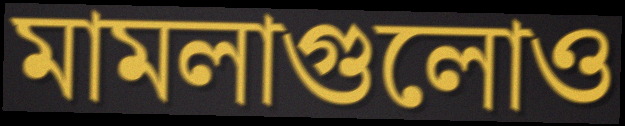
মামলাগুলোও